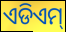
ଏଡିଏମ୍